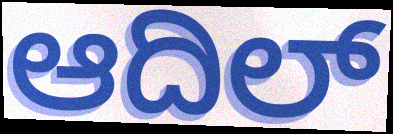
ಆದಿಲ್